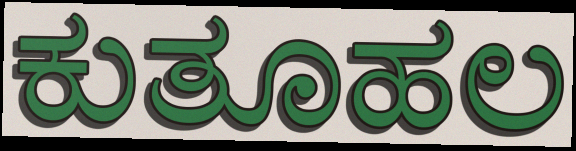
ಕುತೂಹಲ